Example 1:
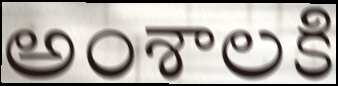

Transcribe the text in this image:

అంశాలకి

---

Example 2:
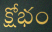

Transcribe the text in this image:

క్షోభం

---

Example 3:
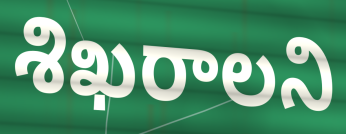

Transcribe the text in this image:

శిఖరాలని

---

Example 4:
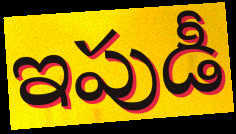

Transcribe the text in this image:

ఇపుడీ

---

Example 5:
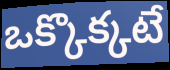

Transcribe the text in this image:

ఒక్కొక్కటే